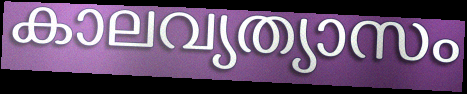
കാലവ്യത്യാസം